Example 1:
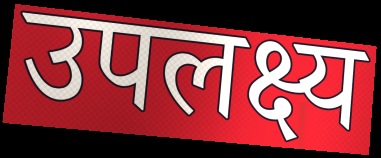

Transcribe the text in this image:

उपलक्ष्य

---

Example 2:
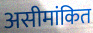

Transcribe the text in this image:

असीमांकित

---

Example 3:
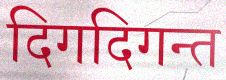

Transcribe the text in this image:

दिगदिगन्त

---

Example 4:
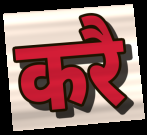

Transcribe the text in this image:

करै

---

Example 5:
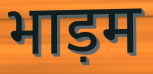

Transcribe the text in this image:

भाड़म